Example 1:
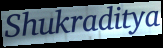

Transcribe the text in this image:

Shukraditya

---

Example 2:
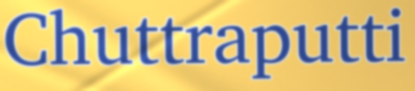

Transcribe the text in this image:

Chuttraputti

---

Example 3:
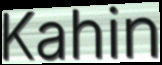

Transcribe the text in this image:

Kahin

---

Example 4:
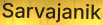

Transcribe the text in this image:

Sarvajanik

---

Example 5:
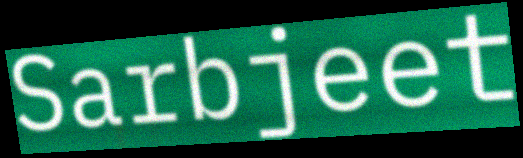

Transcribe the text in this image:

Sarbjeet